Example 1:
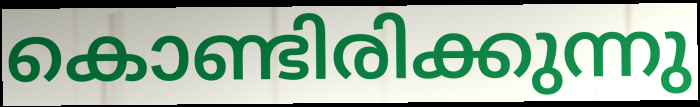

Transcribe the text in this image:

കൊണ്ടിരിക്കുന്നു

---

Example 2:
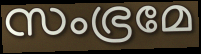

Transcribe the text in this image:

സംഭ്രമേ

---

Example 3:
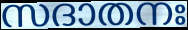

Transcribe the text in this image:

സദാതനഃ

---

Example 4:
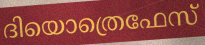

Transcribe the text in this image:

ദിയൊത്രെഫേസ്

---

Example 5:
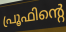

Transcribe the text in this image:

പ്രൂഫിന്റെ